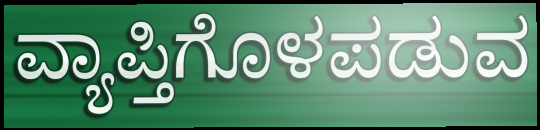
ವ್ಯಾಪ್ತಿಗೊಳಪಡುವ